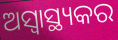
ଅସ୍ବାସ୍ଥ୍ୟକର